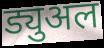
ड्युअल